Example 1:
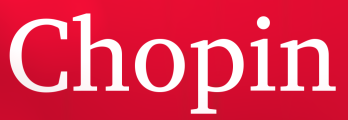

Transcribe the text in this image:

Chopin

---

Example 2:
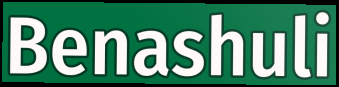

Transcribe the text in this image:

Benashuli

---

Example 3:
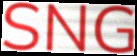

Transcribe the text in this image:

SNG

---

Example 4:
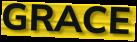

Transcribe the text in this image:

GRACE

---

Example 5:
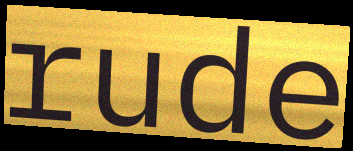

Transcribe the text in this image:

rude